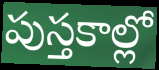
పుస్తకాల్లో